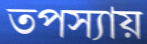
তপস্যায়